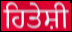
ਹਿਤੇਸ਼ੀ